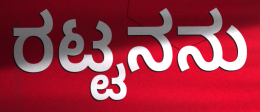
ರಟ್ಟನನು